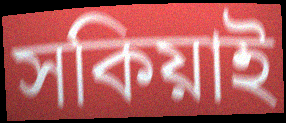
সকিয়াই